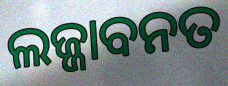
ଲଜ୍ଜାବନତ